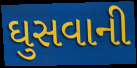
ઘુસવાની